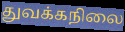
துவக்கநிலை